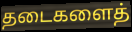
தடைகளைத்